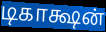
டிகாக்ஷன்